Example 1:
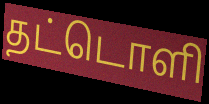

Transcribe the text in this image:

தட்டொளி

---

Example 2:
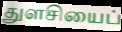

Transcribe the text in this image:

துளசியைப்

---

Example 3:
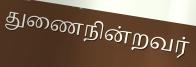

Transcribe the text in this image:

துணைநின்றவர்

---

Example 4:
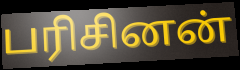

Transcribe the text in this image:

பரிசினன்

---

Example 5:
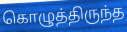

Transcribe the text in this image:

கொழுத்திருந்த